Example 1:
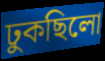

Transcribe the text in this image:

ঢুকছিলো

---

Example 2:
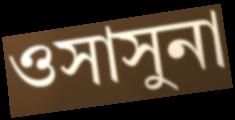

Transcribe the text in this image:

ওসাসুনা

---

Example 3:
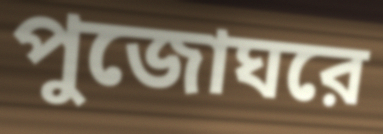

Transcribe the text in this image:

পুজোঘরে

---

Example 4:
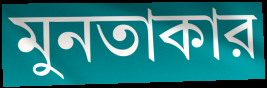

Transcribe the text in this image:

মুনতাকার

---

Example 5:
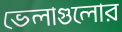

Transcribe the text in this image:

ভেলাগুলোর